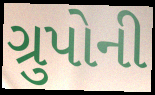
ગ્રુપોની